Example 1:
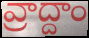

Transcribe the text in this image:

వ్రాద్దాం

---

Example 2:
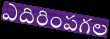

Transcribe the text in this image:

ఎదిరింపగల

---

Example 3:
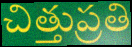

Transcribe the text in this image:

చిత్తుప్రతి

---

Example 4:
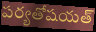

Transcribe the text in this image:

పర్యతోషయత్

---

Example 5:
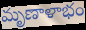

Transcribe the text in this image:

మృణాళాభం